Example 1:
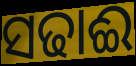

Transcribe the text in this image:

ସଢାଈ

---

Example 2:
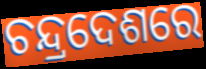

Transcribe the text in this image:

ଚନ୍ଦ୍ରଦେଶରେ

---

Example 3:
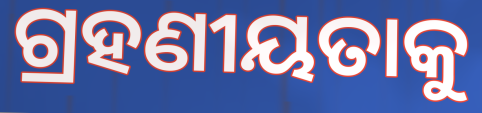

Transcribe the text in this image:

ଗ୍ରହଣୀୟତାକୁ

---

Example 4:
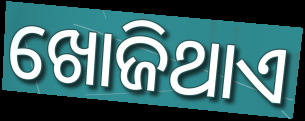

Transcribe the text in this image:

ଖୋଜିଥାଏ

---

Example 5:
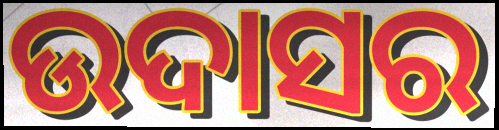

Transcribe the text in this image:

ଉଦାସର